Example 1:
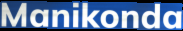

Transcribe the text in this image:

Manikonda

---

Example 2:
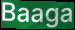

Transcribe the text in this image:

Baaga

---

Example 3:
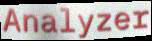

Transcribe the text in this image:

Analyzer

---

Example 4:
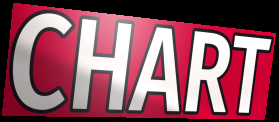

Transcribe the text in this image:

CHART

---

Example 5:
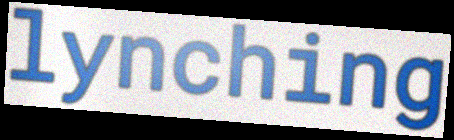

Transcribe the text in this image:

lynching